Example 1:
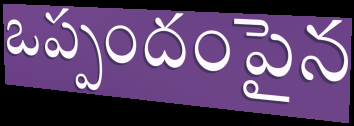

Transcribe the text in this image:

ఒప్పందంపైన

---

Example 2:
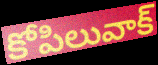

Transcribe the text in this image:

కోపిలువాక్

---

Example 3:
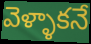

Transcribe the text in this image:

వెళ్ళాకనే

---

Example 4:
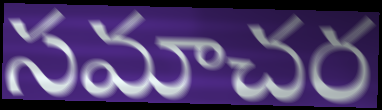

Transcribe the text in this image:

సమాచర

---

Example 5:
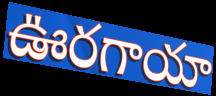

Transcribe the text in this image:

ఊరగాయా